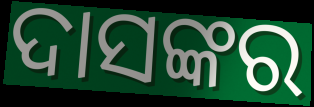
ଦାସଙ୍କର